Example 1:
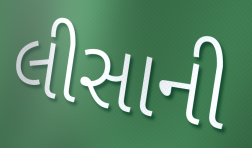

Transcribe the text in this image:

લીસાની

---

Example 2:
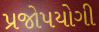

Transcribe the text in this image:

પ્રજોપયોગી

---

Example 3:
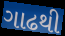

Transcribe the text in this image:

ગાઢથી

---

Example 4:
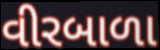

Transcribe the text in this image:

વીરબાળા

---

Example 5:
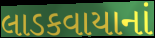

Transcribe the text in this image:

લાડકવાયાનાં